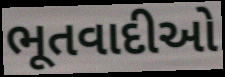
ભૂતવાદીઓ